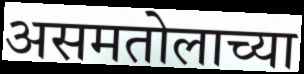
असमतोलाच्या